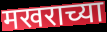
मखराच्या